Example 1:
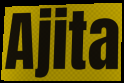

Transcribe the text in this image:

Ajita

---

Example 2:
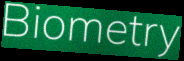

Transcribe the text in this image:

Biometry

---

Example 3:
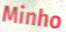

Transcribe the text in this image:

Minho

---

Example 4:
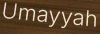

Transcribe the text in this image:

Umayyah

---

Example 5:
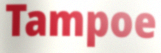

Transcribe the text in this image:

Tampoe